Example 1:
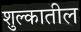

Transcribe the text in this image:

शुल्कातील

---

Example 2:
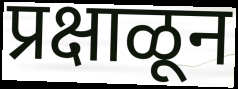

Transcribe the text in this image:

प्रक्षाळून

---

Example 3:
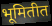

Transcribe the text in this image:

भूमितीत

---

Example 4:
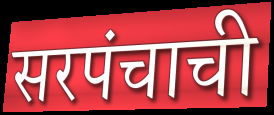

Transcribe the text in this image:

सरपंचाची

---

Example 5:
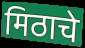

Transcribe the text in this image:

मिठाचे